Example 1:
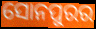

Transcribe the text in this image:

ସୋନପୁରର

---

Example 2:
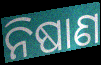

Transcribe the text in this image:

ନିଷାଣ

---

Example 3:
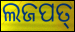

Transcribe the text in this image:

ଲଜପତ୍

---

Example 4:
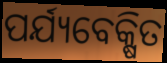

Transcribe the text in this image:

ପର୍ଯ୍ୟବେକ୍ଷିତ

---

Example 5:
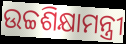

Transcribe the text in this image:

ଉଚ୍ଚଶିକ୍ଷାମନ୍ତ୍ରୀ